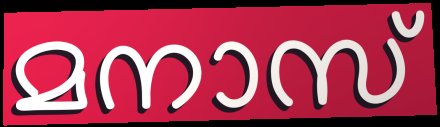
മനാസ്